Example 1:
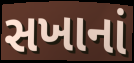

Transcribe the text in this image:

સખાનાં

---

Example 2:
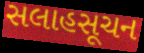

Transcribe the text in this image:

સલાહસૂચન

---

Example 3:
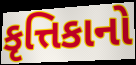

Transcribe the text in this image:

કૃત્તિકાનો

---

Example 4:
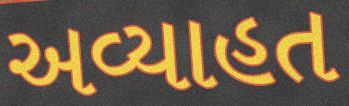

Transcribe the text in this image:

અવ્યાહત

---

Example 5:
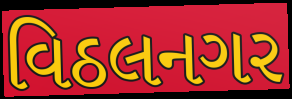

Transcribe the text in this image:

વિઠલનગર